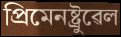
প্ৰিমেনষ্ট্ৰুৱেল